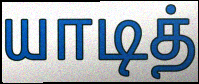
யாடித்